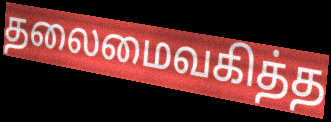
தலைமைவகித்த